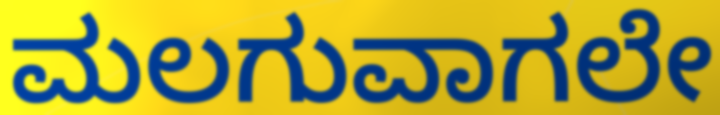
ಮಲಗುವಾಗಲೇ